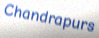
Chandrapurs